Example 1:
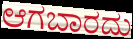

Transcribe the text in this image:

ಆಗಬಾರದು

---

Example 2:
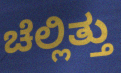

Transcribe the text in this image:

ಚೆಲ್ಲಿತ್ತು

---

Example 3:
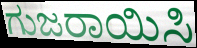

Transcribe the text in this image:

ಗುಜರಾಯಿಸಿ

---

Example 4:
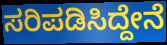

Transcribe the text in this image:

ಸರಿಪಡಿಸಿದ್ದೇನೆ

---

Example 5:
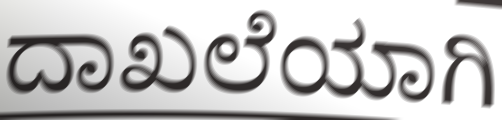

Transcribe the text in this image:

ದಾಖಲೆಯಾಗಿ